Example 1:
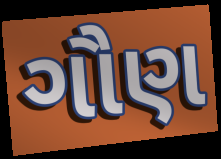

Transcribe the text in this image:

ગૌણ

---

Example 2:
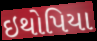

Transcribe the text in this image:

ઇથોપિયા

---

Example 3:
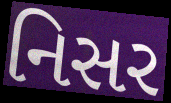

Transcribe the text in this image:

નિસર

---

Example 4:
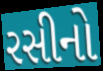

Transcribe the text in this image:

રસીનો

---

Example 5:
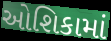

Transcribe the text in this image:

ઓશિકામાં